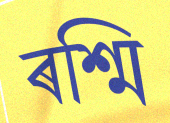
ৰশ্মি